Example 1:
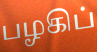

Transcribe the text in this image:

பழகிப்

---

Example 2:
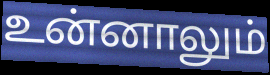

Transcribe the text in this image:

உன்னாலும்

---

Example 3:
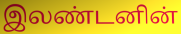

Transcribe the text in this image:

இலண்டனின்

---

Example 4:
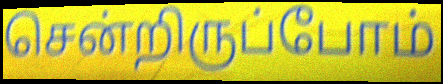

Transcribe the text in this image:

சென்றிருப்போம்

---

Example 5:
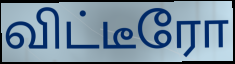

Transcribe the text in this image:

விட்டீரோ